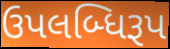
ઉપલબ્ધિરૂપ